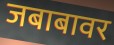
जबाबावर